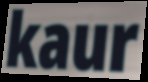
kaur